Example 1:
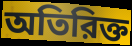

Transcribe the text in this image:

অতিরিক্ত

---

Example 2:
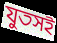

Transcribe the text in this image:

যুতসই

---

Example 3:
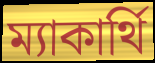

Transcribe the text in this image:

ম্যাকার্থি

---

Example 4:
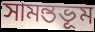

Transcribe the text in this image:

সামন্তভূম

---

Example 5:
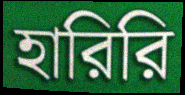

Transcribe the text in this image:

হারিরি